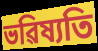
ভৱিষ্যতি